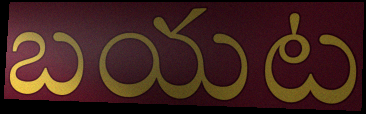
బయట